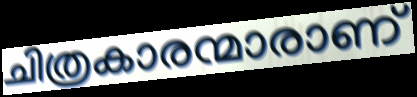
ചിത്രകാരന്മാരാണ്